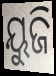
ୟୁଜି